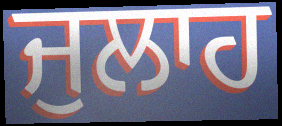
ਜੁਲਾਹ